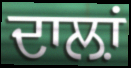
ਦਾਲ਼ਾਂ